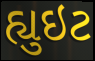
હ્યુઇટ